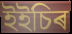
ইইচিৰ